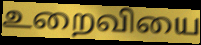
உறைவியை